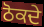
ਠੋਕਦੇ